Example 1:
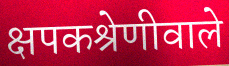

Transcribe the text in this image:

क्षपकश्रेणीवाले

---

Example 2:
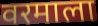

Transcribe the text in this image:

वरमाला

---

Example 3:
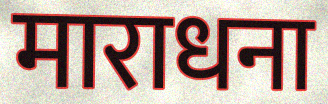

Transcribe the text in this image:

माराधना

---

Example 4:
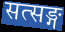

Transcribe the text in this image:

सत्सङ्ग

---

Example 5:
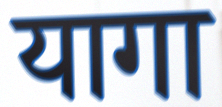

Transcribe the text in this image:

यागा